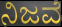
ನಿಜವೆ